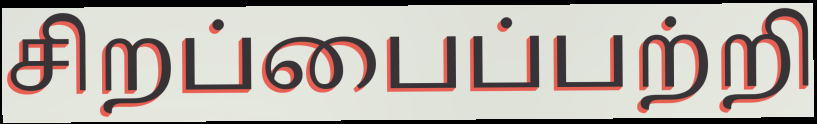
சிறப்பைப்பற்றி